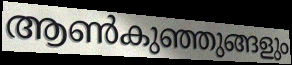
ആൺകുഞ്ഞുങ്ങളും